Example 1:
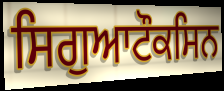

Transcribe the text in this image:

ਸਿਗੁਆਟੌਕਸਿਨ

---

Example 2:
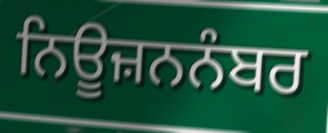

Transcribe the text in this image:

ਨਿਊਜ਼ਨਨੰਬਰ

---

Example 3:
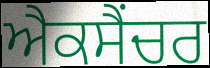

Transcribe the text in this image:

ਐਕਸੈਂਚਰ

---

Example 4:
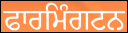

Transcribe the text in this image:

ਫਾਰਮਿੰਗਟਨ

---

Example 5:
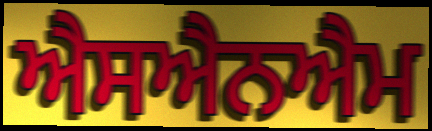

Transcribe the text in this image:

ਐਸਐਨਐਮ